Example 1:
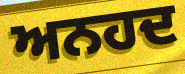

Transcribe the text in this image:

ਅਨਹਦ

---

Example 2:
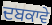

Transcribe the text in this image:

ਦਬਕਾਵੇ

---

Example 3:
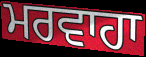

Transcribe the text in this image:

ਮਰਵਾਹਾ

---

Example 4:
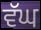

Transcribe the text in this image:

ਵੱਘ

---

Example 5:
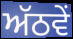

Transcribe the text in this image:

ਅੱਠਵੇਂ